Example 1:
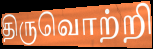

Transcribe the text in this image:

திருவொற்றி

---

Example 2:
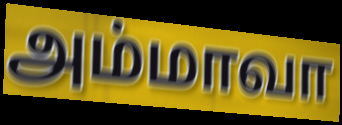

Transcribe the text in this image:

அம்மாவா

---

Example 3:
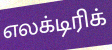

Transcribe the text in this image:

எலக்டிரிக்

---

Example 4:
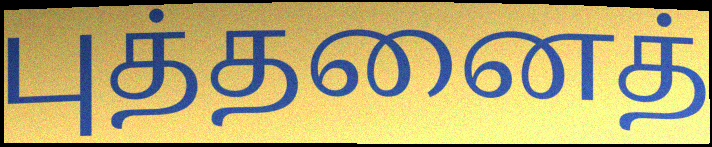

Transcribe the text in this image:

புத்தனைத்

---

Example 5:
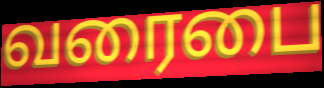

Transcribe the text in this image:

வரைபை